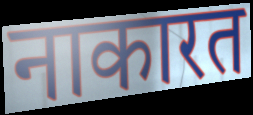
नाकारत